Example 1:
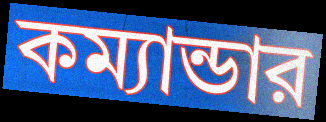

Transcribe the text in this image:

কম্যান্ডার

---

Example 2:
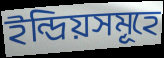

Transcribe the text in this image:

ইন্দ্রিয়সমূহে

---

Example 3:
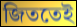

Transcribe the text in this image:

জিততেই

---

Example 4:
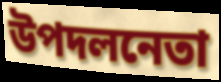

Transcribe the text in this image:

উপদলনেতা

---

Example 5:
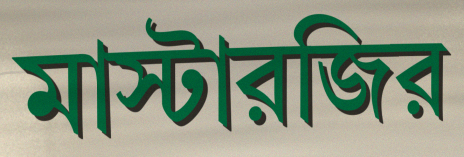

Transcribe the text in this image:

মাস্টারজির